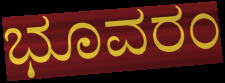
ಭೂವರಂ